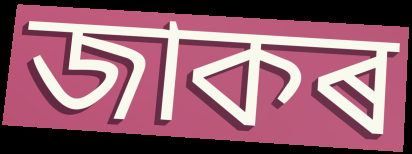
জাকৰ